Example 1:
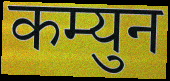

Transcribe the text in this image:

कम्युन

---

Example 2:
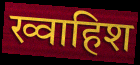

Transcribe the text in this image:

ख्वाहिश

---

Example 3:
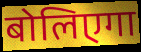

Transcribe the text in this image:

बोलिएगा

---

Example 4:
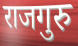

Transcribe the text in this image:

राजगुरु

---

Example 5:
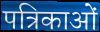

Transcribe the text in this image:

पत्रिकाओं